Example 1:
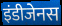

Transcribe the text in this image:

इंडीजेनस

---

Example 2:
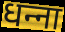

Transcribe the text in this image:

धन्ना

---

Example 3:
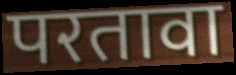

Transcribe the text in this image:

परतावा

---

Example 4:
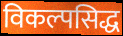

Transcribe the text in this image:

विकल्पसिद्ध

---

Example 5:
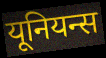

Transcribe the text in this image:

यूनियन्स